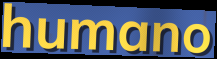
humano